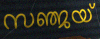
സഞ്ജയ്